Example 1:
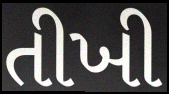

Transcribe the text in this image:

તીખી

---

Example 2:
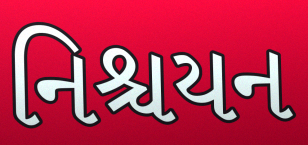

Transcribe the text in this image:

નિશ્ચયન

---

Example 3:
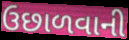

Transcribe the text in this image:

ઉછાળવાની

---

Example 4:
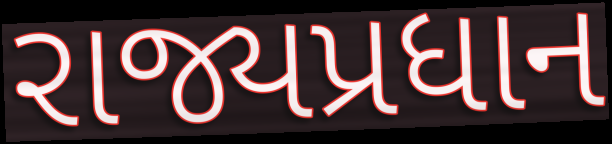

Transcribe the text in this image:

રાજ્યપ્રધાન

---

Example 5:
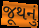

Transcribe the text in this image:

જૂથનું